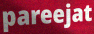
pareejat